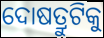
ଦୋଷତ୍ରୁଟିକୁ